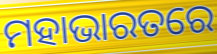
ମହାଭାରତରେ